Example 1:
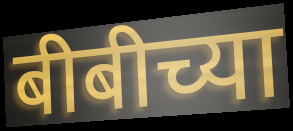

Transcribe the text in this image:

बीबीच्या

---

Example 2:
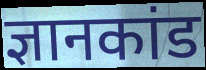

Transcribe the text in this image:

ज्ञानकांड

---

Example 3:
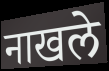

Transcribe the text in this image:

नाखले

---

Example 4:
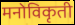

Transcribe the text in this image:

मनोविकृती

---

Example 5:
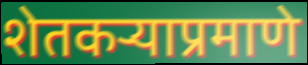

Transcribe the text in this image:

शेतकऱ्याप्रमाणे